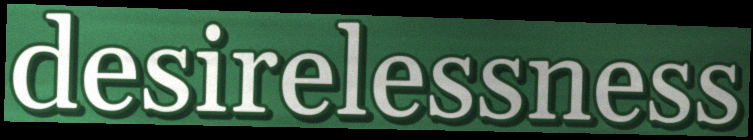
desirelessness